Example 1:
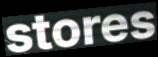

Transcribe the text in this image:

stores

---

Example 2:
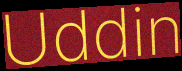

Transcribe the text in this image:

Uddin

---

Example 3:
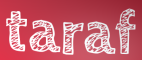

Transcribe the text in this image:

taraf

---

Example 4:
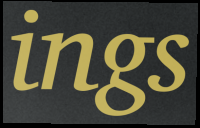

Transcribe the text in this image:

ings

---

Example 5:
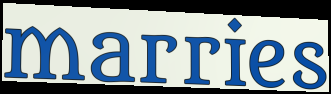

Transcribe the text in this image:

marries